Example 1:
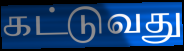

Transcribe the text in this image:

கட்டுவது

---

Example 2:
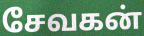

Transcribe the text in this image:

சேவகன்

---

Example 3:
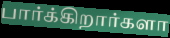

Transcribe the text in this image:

பார்க்கிறார்களா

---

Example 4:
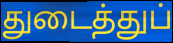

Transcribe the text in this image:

துடைத்துப்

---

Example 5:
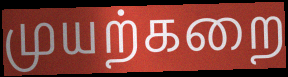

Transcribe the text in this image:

முயற்கறை